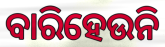
ବାରିହେଉନି